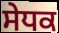
ਸੇਧਕ